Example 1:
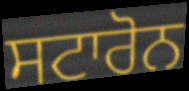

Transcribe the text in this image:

ਸਟਾਰੋਨ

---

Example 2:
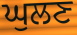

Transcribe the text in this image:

ਘੁਲਣ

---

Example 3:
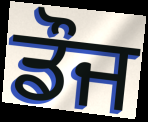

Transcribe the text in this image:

ਡੌਜ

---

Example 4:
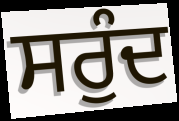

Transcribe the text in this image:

ਸਰੁੰਦ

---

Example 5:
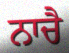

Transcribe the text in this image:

ਨਾਚੈ